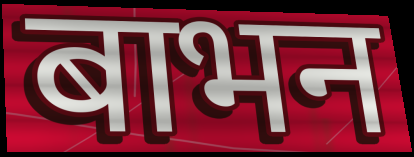
बाभन